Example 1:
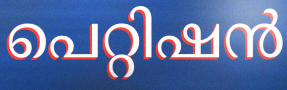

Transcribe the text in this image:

പെറ്റിഷൻ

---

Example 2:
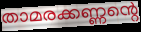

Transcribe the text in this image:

താമരക്കണ്ണന്റെ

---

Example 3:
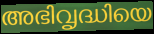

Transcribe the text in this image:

അഭിവൃദ്ധിയെ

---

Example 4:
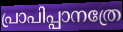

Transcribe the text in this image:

പ്രാപിപ്പാനത്രേ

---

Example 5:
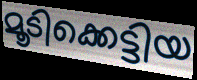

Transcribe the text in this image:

മൂടിക്കെട്ടിയ